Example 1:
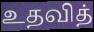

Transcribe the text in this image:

உதவித்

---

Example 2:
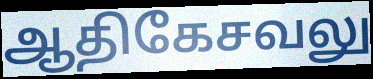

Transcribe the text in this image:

ஆதிகேசவலு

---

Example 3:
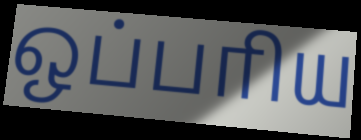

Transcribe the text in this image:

ஒப்பரிய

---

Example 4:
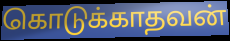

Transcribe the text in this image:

கொடுக்காதவன்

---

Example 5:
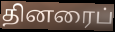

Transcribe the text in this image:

தினரைப்